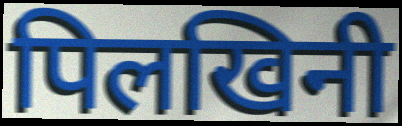
पिलखिनी